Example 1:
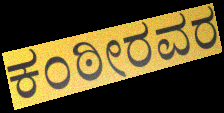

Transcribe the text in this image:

ಕಂಠೀರವರ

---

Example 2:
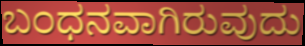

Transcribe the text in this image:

ಬಂಧನವಾಗಿರುವುದು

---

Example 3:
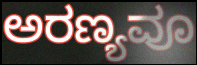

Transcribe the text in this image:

ಅರಣ್ಯವೂ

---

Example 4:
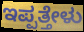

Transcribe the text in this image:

ಇಪ್ಪತ್ತೇಳು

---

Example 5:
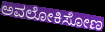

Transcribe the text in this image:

ಅವಲೋಕಿಸೋಣ